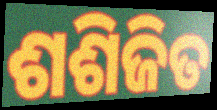
ଶଶିଜିତ